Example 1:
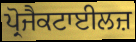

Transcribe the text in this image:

ਪ੍ਰੋਜੈਕਟਾਈਲਜ਼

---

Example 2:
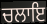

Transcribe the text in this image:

ਚਲਾਇ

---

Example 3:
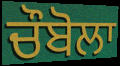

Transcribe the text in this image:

ਚੌਬੋਲਾ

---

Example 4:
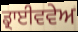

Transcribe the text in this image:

ਡ੍ਰਾਈਵਵੇਅ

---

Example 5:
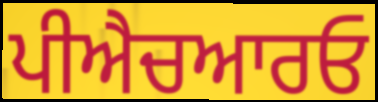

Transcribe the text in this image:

ਪੀਐਚਆਰਓ